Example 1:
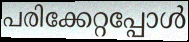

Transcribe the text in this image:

പരിക്കേറ്റപ്പോൾ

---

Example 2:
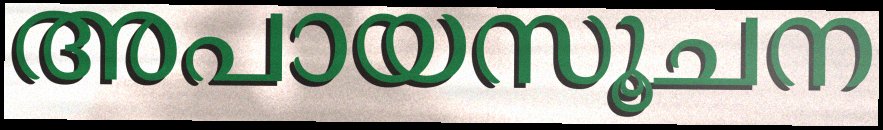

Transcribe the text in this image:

അപായസൂചന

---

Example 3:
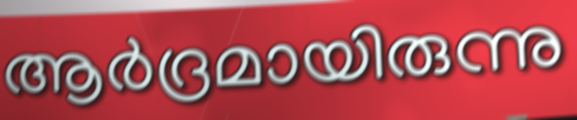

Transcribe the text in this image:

ആർദ്രമായിരുന്നു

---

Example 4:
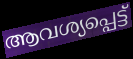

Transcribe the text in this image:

ആവശ്യപ്പെട്ട്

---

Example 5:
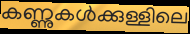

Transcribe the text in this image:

കണ്ണുകൾക്കുള്ളിലെ